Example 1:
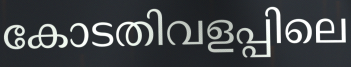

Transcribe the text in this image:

കോടതിവളപ്പിലെ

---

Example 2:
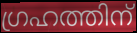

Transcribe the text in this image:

ഗ്രഹത്തിന്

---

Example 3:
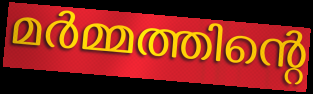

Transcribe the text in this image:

മർമ്മത്തിന്റെ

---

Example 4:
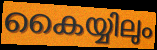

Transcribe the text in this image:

കൈയ്യിലും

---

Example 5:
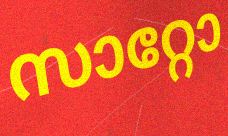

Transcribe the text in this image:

സാറ്റോ